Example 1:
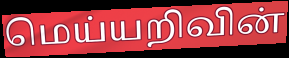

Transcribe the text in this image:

மெய்யறிவின்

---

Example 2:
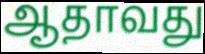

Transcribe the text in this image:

ஆதாவது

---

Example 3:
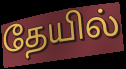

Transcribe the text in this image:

தேயில்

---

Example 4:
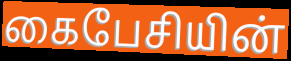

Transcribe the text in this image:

கைபேசியின்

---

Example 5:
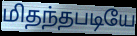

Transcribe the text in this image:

மிதந்தபடியே